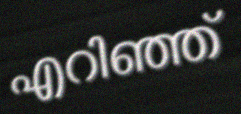
എറിഞ്ഞ്